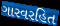
ગારવરહિત